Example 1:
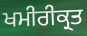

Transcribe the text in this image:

ਖਮੀਰੀਕ੍ਰਤ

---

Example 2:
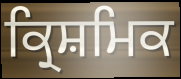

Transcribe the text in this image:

ਕ੍ਰਿਸ਼ਮਿਕ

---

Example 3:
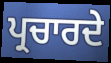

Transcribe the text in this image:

ਪ੍ਰਚਾਰਦੇ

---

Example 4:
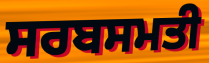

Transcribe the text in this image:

ਸਰਬਸਮਤੀ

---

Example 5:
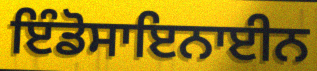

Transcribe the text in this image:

ਇੰਡੋਸਾਇਨਾਈਨ